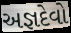
અજ્ઞદેવો